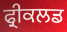
ਫ੍ਰੀਕਲਡ